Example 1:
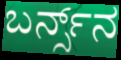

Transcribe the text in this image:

ಬರ್ನ್ಸ್‌ನ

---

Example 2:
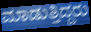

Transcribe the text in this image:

ಮಾಡುತ್ತಿದ್ದರು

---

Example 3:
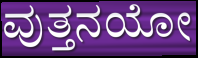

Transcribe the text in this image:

ವುತ್ತನಯೋ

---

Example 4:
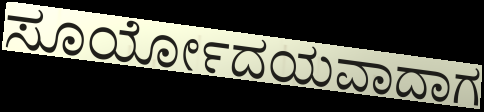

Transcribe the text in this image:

ಸೂರ್ಯೋದಯವಾದಾಗ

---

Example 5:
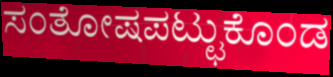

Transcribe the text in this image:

ಸಂತೋಷಪಟ್ಟುಕೊಂಡ